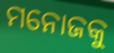
ମନୋଜକୁ